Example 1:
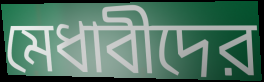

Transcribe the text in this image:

মেধাবীদের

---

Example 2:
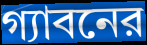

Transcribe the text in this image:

গ্যাবনের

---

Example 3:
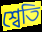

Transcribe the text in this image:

শ্বেতি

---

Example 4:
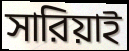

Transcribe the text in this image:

সারিয়াই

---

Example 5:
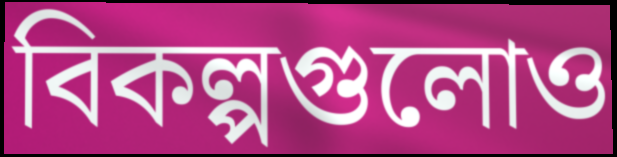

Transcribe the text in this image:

বিকল্পগুলোও